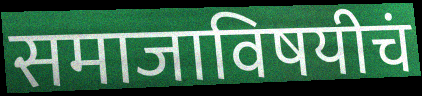
समाजाविषयीचं